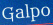
Galpo